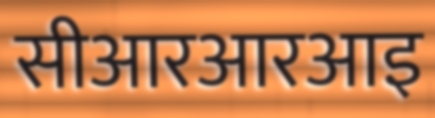
सीआरआरआइ